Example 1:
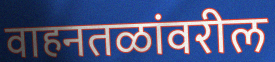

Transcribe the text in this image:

वाहनतळांवरील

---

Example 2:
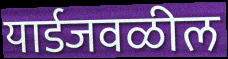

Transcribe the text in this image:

यार्डजवळील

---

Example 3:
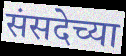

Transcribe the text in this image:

संसदेच्या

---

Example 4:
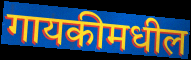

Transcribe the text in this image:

गायकीमधील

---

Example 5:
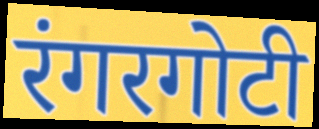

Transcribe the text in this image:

रंगरगोटी